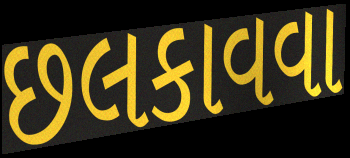
છલકાવવા